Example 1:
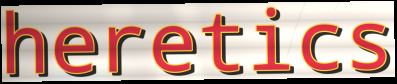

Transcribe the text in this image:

heretics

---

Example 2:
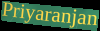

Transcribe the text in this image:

Priyaranjan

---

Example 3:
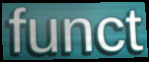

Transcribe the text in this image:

funct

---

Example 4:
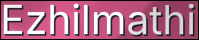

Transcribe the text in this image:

Ezhilmathi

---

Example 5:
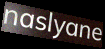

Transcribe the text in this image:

naslyane